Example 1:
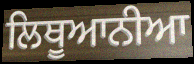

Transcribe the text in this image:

ਲਿਥੂਆਨੀਆ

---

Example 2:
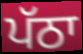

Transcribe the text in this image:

ਪੱਠਾ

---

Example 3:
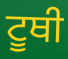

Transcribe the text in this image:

ਟੂਥੀ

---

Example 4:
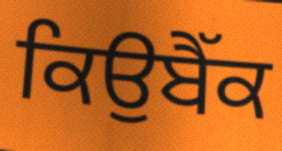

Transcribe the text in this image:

ਕਿਉਬੈੱਕ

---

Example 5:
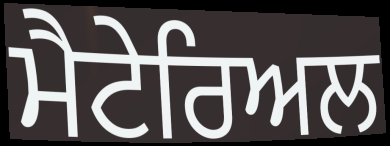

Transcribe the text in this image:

ਮੈਟੇਰਿਅਲ